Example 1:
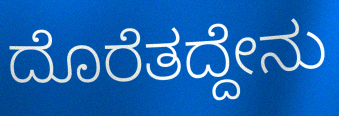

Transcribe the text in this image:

ದೊರೆತದ್ದೇನು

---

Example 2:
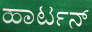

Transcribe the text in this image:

ಹಾರ್ಟನ್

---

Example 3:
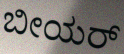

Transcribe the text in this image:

ಬೀಯರ್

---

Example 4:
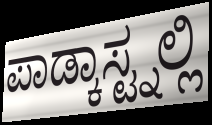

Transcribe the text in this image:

ಪಾಡ್ಕಾಸ್ಟ್ನಲ್ಲಿ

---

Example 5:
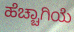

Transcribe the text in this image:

ಹೆಚ್ಚಾಗಿಯೆ